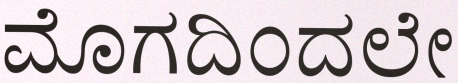
ಮೊಗದಿಂದಲೇ